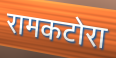
रामकटोरा